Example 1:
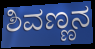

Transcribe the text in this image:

ಶಿವಣ್ಣನ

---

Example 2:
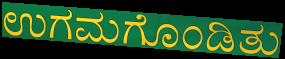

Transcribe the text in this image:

ಉಗಮಗೊಂಡಿತು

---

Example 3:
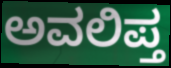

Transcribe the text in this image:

ಅವಲಿಪ್ತ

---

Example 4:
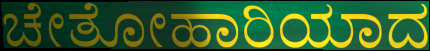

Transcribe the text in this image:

ಚೇತೋಹಾರಿಯಾದ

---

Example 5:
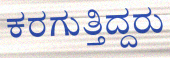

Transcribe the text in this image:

ಕರಗುತ್ತಿದ್ದರು